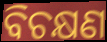
ବିଚକ୍ଷଣ